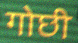
गोछी